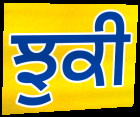
ਝੁਕੀ